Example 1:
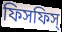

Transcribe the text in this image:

ফিসফিস্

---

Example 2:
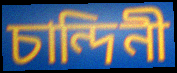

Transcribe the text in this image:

চান্দিনী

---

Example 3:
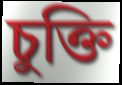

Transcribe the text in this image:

চুক্তি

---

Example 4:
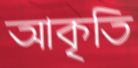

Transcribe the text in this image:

আকৃতি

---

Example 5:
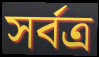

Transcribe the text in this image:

সর্বত্র